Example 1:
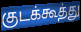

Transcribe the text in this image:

குடக்கூத்து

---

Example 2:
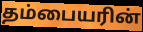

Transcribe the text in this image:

தம்பையரின்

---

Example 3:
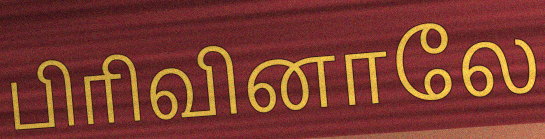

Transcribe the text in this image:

பிரிவினாலே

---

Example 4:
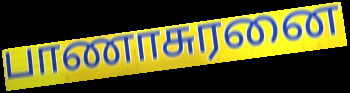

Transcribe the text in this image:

பாணாசுரனை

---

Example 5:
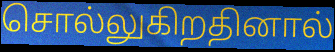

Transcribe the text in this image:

சொல்லுகிறதினால்